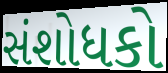
સંશોધકો